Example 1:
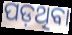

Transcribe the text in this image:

ପଡ଼ଥିବା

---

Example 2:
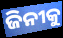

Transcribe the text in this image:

ଜିନୀକୁ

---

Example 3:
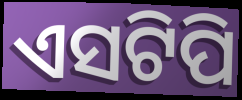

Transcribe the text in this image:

ଏସଟିପି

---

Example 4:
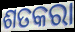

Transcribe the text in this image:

ଶତକରା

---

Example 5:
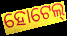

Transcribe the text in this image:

ହୋଟେଲ୍